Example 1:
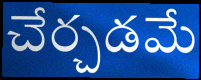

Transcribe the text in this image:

చేర్చడమే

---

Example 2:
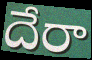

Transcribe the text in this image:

దేరా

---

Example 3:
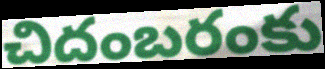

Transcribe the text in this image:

చిదంబరంకు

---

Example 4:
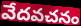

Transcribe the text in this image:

వేదవచనం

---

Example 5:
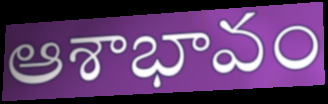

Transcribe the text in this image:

ఆశాభావం